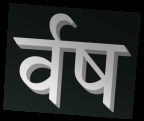
र्वष